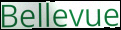
Bellevue